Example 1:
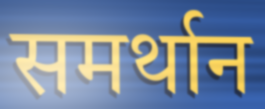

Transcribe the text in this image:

समर्थान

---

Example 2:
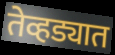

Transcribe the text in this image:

तेव्हड्यात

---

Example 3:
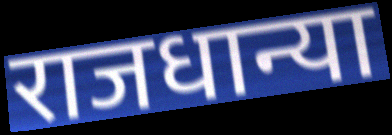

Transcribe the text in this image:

राजधान्या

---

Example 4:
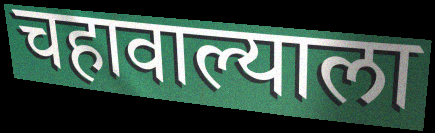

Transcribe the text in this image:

चहावाल्याला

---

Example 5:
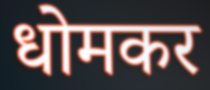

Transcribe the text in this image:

धोमकर